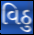
વિઠુ